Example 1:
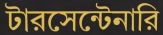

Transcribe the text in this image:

টারসেন্টেনারি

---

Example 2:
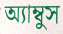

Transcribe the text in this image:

অ্যাম্বুস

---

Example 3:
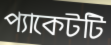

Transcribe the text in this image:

প্যাকেটটি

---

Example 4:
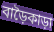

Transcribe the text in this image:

বাড়ৈকাড়া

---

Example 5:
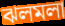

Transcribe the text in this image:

ঝলমলা